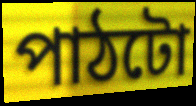
পাঠটো